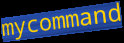
mycommand